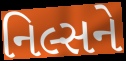
નિલ્સને